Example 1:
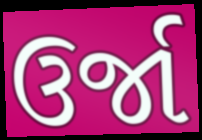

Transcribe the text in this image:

ઉર્જા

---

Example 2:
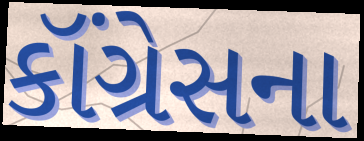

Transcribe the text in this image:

કૉંગ્રેસના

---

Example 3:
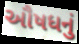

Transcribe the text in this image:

ઔષધનું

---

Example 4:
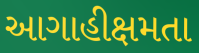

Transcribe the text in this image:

આગાહીક્ષમતા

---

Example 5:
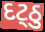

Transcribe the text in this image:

દટ્ઠુ